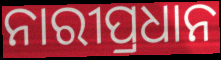
ନାରୀପ୍ରଧାନ